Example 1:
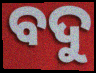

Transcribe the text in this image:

ବଦୁ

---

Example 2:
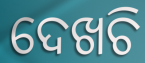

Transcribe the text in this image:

ଦେଖଚି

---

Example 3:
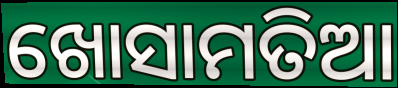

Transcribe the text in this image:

ଖୋସାମତିଆ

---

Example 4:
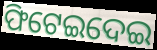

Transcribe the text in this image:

ଫିଟେଇଦେଇ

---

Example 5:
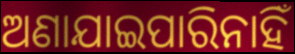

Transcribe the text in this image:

ଅଣାଯାଇପାରିନାହିଁ